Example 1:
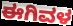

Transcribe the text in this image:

ಈಗಿವಳ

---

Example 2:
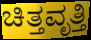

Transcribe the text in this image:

ಚಿತ್ತವೃತ್ತಿ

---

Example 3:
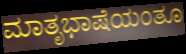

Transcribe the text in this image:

ಮಾತೃಭಾಷೆಯಂತೂ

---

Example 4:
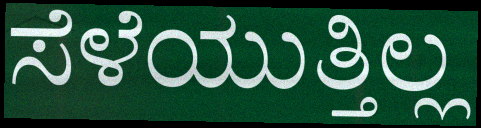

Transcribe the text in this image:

ಸೆಳೆಯುತ್ತಿಲ್ಲ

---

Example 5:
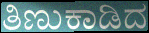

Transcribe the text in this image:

ತಿಣುಕಾಡಿದ